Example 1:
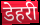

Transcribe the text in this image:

डेहरी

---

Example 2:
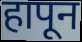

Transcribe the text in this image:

हापून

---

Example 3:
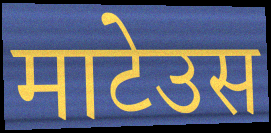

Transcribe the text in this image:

माटेउस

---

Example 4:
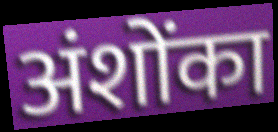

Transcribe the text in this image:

अंशोंका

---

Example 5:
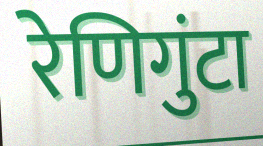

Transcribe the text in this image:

रेणिगुंटा